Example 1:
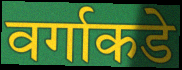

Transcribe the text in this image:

वर्गाकडे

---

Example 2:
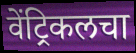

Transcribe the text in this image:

वेंट्रिकलचा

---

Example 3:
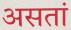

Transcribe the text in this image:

असतां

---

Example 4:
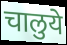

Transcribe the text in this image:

चालुये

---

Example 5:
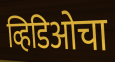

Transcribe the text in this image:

व्हिडिओचा